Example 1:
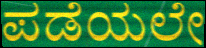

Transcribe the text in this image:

ಪಡೆಯಲೇ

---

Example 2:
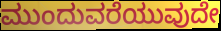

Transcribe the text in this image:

ಮುಂದುವರೆಯುವುದೇ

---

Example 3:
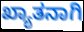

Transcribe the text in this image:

ಖ್ಯಾತನಾಗಿ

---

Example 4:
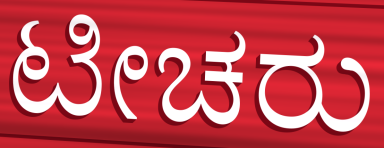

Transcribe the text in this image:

ಟೀಚರು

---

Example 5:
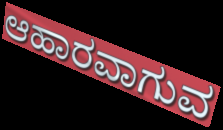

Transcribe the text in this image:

ಆಹಾರವಾಗುವ